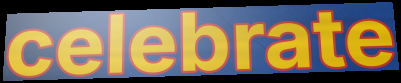
celebrate